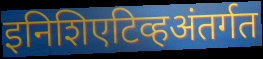
इनिशिएटिव्हअंतर्गत